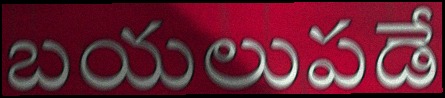
బయలుపడే